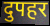
दुपहर